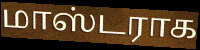
மாஸ்டராக